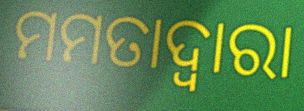
ମମତାଦ୍ୱାରା